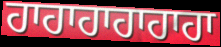
ਹਾਹਾਹਾਹਾਹਾਹਾ